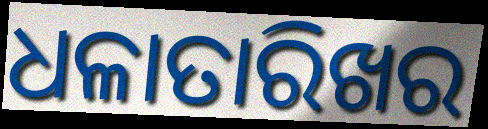
ଧଳାତାରିଖର